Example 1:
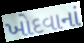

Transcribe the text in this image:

ખોદવાનાં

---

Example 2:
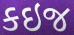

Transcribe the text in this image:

કઇજ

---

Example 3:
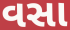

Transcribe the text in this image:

વસા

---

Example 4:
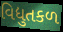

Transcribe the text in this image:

વિદ્યુતકળ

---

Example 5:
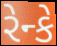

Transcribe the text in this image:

રેન્કે